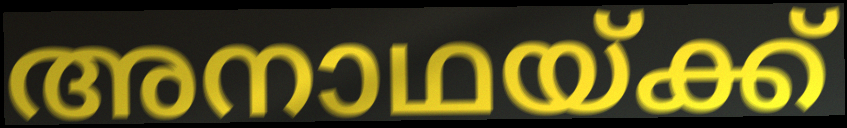
അനാഥയ്ക്ക്